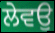
ਲੇਵਉ